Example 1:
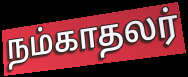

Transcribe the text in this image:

நம்காதலர்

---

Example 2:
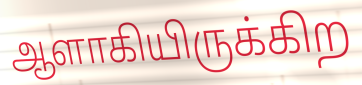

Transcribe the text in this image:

ஆளாகியிருக்கிற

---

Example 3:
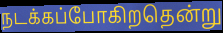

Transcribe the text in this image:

நடக்கப்போகிறதென்று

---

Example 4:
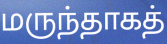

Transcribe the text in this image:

மருந்தாகத்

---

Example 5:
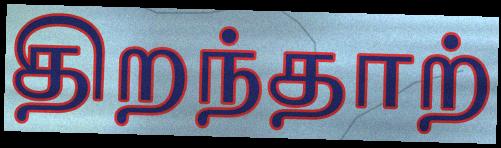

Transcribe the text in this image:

திறந்தாற்